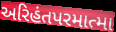
અરિહંતપરમાત્મા